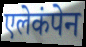
एलेकंपेन